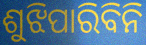
ଶୁଝିପାରିବିନି